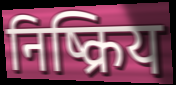
निष्क्रिय